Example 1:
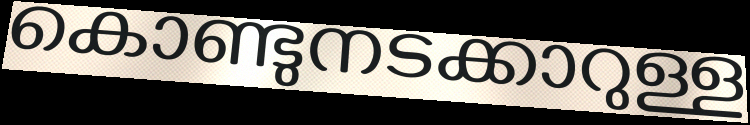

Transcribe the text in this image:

കൊണ്ടുനടക്കാറുള്ള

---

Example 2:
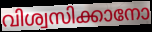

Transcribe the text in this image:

വിശ്വസിക്കാനോ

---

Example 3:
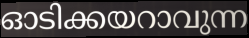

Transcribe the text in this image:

ഓടിക്കയറാവുന്ന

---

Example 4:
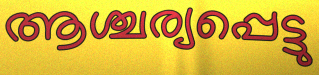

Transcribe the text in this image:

ആശ്ചര്യപ്പെട്ടു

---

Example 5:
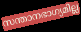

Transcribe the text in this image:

സന്താനഭാഗ്യമില്ല